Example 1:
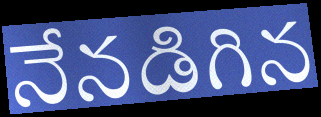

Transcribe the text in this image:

నేనడిగిన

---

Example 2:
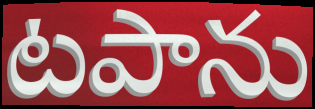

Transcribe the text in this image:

టపాను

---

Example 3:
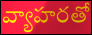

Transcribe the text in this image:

వ్యాహరతో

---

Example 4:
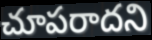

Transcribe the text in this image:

చూపరాదని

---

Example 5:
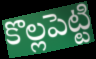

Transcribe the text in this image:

కొల్లపెట్టి